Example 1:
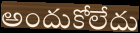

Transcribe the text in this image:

అందుకోలేదు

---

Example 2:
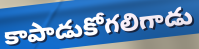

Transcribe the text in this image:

కాపాడుకోగలిగాడు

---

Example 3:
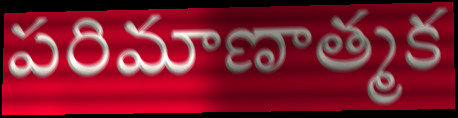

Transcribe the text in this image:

పరిమాణాత్మక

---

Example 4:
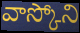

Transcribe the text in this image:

వాస్కోని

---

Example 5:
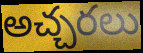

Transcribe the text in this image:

అచ్చరలు